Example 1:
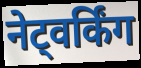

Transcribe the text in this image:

नेट्वर्किंग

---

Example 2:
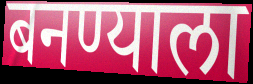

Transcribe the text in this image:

बनण्याला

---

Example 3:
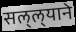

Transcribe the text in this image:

सल्ल्याने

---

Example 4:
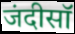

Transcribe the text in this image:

जंदीसॉ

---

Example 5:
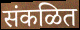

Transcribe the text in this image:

संकळित